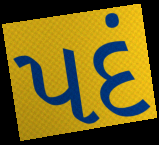
પદં